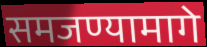
समजण्यामागे